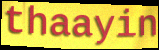
thaayin